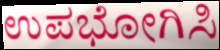
ಉಪಭೋಗಿಸಿ